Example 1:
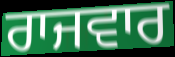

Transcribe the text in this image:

ਰਾਜਵਾਰ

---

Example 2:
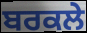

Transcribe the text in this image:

ਬਰਕਲੇ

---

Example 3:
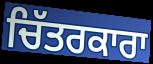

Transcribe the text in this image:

ਚਿੱਤਰਕਾਰਾ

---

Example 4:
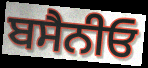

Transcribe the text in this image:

ਬਸੈਨੀਓ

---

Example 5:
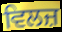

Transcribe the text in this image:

ਵਿਲਜ਼